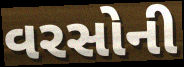
વરસોની